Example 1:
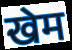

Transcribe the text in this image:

खेम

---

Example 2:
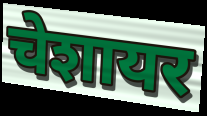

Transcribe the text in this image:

चेशायर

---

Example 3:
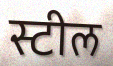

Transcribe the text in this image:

स्टील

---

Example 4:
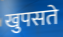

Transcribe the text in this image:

खुपसते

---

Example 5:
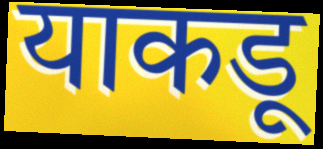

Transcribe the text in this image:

याकडू